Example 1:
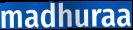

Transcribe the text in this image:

madhuraa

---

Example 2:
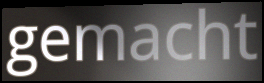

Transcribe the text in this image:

gemacht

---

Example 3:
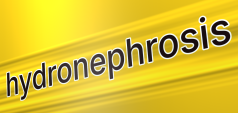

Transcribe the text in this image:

hydronephrosis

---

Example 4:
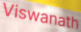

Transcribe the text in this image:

Viswanath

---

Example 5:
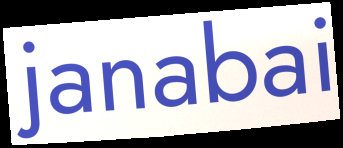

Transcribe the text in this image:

janabai